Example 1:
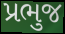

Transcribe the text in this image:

પ્રભુજ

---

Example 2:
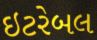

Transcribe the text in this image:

ઇટરેબલ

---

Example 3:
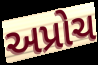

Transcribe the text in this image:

અપ્રોચ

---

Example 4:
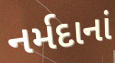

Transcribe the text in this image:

નર્મદાનાં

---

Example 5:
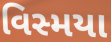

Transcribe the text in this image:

વિસ્મયા